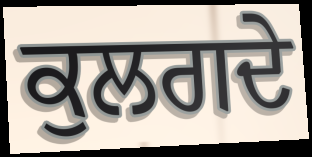
ਕੁਲਗਦੇ